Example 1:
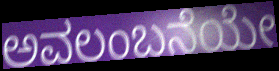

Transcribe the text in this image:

ಅವಲಂಬನೆಯೇ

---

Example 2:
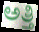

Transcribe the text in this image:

ಅತ್ತಿ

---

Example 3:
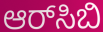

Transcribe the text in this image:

ಆರ್‌ಸಿಬಿ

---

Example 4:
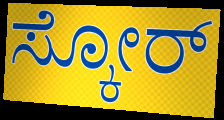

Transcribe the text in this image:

ಸ್ಕೋರ್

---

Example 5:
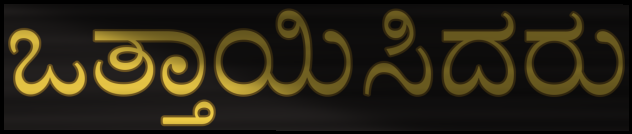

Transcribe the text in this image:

ಒತ್ತಾಯಿಸಿದರು